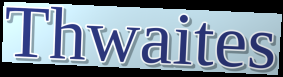
Thwaites